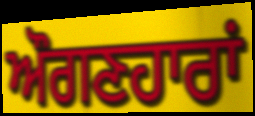
ਔਗਣਹਾਰਾਂ